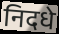
निदधे